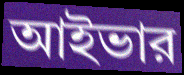
আইভার